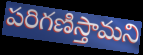
పరిగణిస్తామని